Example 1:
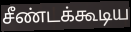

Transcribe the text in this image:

சீண்டக்கூடிய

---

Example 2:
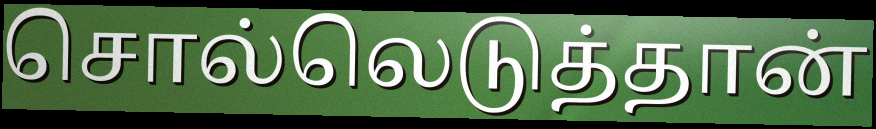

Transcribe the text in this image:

சொல்லெடுத்தான்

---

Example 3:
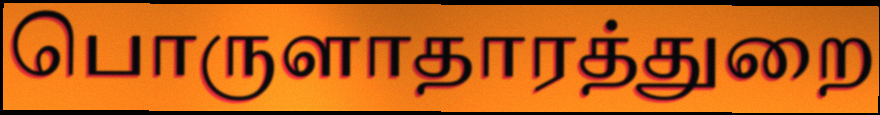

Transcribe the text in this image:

பொருளாதாரத்துறை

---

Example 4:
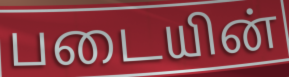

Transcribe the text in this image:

படையின்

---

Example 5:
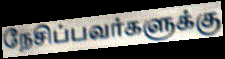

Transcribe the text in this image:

நேசிப்பவர்களுக்கு